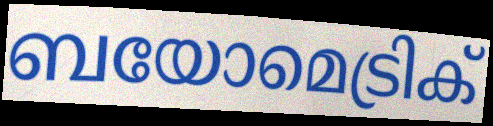
ബയോമെട്രിക്